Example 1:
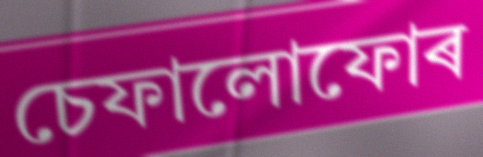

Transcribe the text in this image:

চেফালোফোৰ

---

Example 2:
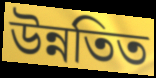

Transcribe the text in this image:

উন্নতিত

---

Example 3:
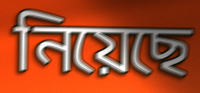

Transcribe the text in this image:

নিয়েছে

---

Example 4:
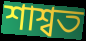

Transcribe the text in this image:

শাশ্বত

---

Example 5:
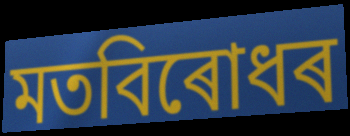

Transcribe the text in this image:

মতবিৰোধৰ